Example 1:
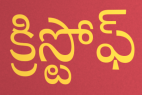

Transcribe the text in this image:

క్రిస్టోఫ్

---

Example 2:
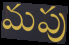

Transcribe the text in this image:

మపు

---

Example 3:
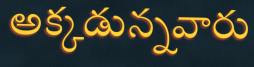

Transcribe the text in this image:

అక్కడున్నవారు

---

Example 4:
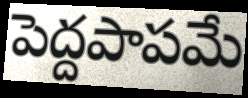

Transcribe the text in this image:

పెద్దపాపమే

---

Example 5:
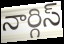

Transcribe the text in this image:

నార్గిస్